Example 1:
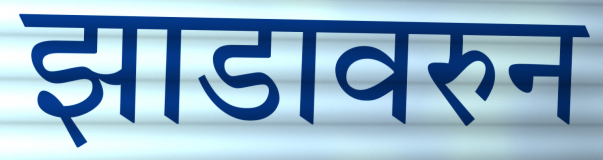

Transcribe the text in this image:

झाडावरुन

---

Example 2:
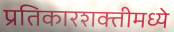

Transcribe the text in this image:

प्रतिकारशक्तीमध्ये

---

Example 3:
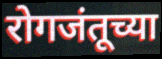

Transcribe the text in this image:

रोगजंतूच्या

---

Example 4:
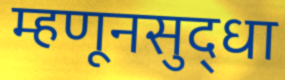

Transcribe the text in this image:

म्हणूनसुद्धा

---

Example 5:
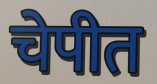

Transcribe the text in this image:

चेपीत